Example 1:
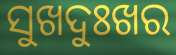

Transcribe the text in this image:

ସୁଖଦୁଃଖର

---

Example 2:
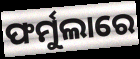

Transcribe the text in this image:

ଫର୍ମୁଲାରେ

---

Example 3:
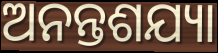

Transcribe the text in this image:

ଅନନ୍ତଶଯ୍ୟା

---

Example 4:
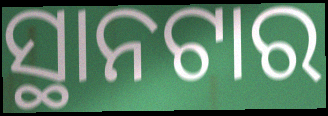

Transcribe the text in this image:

ସ୍ଥାନଟାର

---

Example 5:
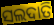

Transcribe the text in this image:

ସଲଦାତି